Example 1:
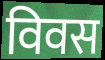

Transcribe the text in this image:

विवस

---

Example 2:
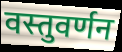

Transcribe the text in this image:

वस्तुवर्णन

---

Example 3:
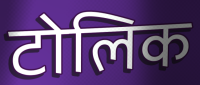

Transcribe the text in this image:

टोलिक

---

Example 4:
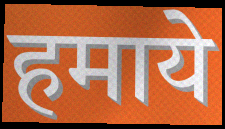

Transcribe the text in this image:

हमाये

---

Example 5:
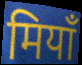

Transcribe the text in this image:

मियाँ